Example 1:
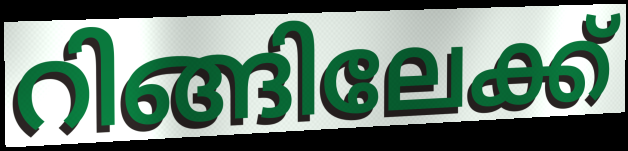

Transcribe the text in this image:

റിങ്ങിലേക്ക്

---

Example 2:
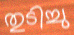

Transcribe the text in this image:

തുടിച്ചു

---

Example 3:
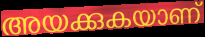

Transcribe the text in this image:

അയക്കുകയാണ്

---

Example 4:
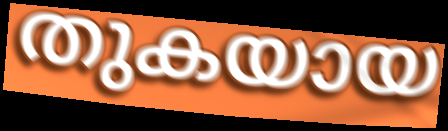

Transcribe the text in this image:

തുകയായ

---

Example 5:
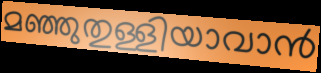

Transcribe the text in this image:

മഞ്ഞുതുള്ളിയാവാൻ